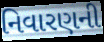
નિવારણની